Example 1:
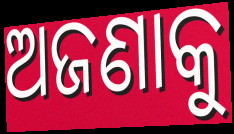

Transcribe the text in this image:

ଅଜଣାକୁ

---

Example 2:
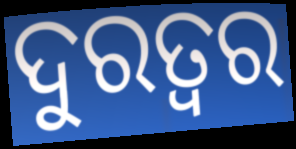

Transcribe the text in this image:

ଦୁରତ୍ଵର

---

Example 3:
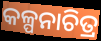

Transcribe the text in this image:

କଳ୍ପନାଚିତ୍ର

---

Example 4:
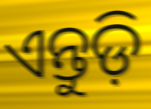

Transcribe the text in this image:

ଏନ୍ତୁଡ଼ି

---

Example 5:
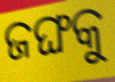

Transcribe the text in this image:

ଜଙ୍ଘକୁ